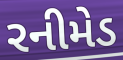
રનીમેડ